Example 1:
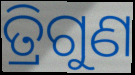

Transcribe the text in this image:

ତ୍ରିଗୁଣ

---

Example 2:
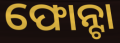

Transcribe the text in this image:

ଫୋନ୍ଟା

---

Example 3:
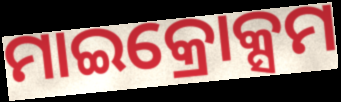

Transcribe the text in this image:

ମାଇକ୍ରୋକ୍ସମ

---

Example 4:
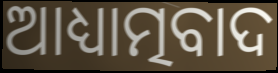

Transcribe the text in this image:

ଆଧ୍ୟାତ୍ମବାଦ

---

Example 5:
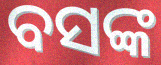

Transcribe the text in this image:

ବସଙ୍କ